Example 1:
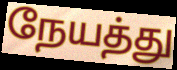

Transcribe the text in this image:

நேயத்து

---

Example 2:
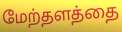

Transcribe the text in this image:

மேற்தளத்தை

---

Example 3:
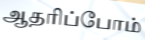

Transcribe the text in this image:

ஆதரிப்போம்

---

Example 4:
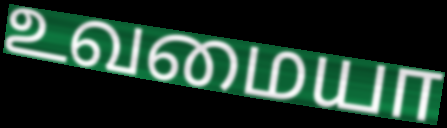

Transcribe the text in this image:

உவமையா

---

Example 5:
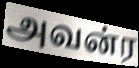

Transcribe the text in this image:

அவன்ர